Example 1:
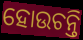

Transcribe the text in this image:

ହୋଉଚନ୍ତି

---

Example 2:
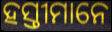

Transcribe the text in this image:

ହସ୍ତୀମାନେ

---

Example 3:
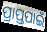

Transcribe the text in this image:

ପ୍ରାପ୍ତପାଇଁ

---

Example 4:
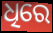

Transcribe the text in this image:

ଧିରେ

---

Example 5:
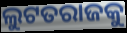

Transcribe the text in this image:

ଲୁଟତରାଜକୁ